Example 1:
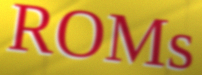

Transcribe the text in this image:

ROMs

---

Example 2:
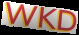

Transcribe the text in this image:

WKD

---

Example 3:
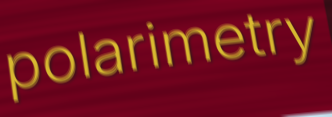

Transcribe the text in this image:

polarimetry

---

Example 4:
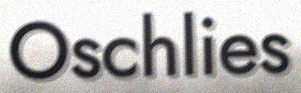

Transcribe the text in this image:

Oschlies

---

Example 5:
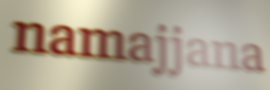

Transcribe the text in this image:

namajjana